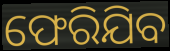
ଫେରିଯିବ